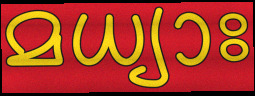
മധ്യാഃ